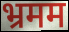
भ्रमम